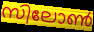
സിലോൺ